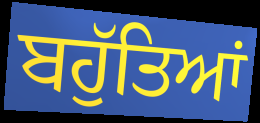
ਬਹੁੱਤਿਆਂ